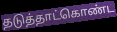
தடுத்தாட்கொண்ட